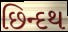
છિન્દથ